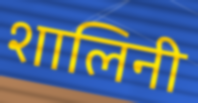
शालिनी